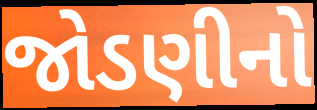
જોડણીનો